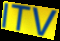
ITV